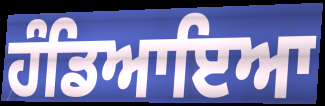
ਹੰਡਿਆਇਆ